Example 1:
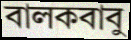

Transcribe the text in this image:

বালকবাবু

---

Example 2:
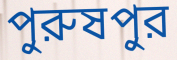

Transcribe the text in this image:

পুরুষপুর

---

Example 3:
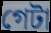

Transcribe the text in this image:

গেটা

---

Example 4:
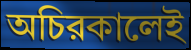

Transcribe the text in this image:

অচিরকালেই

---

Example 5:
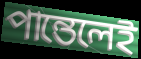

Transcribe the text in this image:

পান্তেলেই